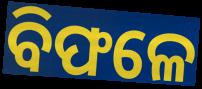
ବିଫଳେ